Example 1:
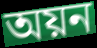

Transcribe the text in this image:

অয়ন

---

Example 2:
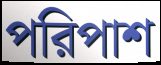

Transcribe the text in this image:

পরিপাশ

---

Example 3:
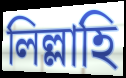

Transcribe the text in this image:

লিল্লাহি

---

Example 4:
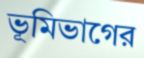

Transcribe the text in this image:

ভূমিভাগের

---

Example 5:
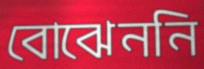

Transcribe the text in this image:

বোঝেননি